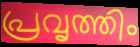
പ്രവൃത്തിം